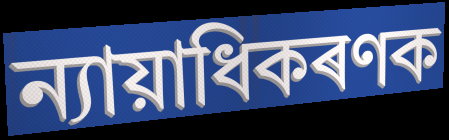
ন্যায়াধিকৰণক